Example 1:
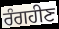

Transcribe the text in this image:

ਰੰਗਹੀਣ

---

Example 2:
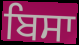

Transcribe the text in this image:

ਬਿਸਾ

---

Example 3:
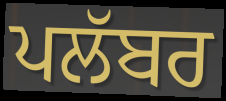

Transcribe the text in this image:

ਪਲੱਬਰ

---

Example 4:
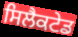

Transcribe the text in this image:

ਸਿਲੈਕਟੇਡ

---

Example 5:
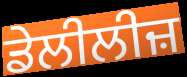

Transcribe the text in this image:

ਡੇਲੀਲੀਜ਼